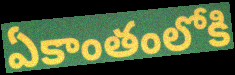
ఏకాంతంలోకి